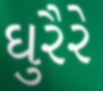
ઘુરૈરે